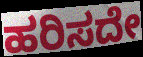
ಹರಿಸದೇ